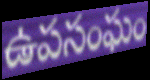
ఉపసంఘం